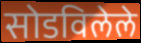
सोडविलेले